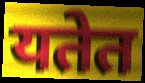
यतेत